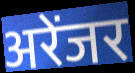
अरेंजर